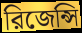
রিজেন্সি